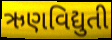
ઋણવિદ્યુતી